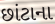
છાંટાના